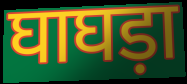
घाघड़ा